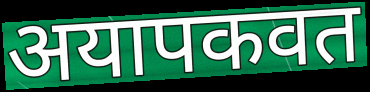
अयापकवत